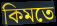
কিমতে